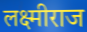
लक्ष्मीराज